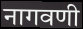
नागवणी